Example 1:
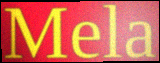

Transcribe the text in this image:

Mela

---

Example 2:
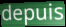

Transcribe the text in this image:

depuis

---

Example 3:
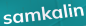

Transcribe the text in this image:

samkalin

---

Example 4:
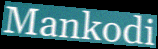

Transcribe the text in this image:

Mankodi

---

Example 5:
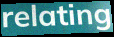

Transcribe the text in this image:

relating